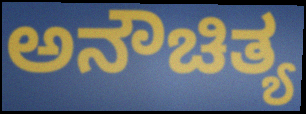
ಅನೌಚಿತ್ಯ